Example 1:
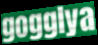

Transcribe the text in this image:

gogglya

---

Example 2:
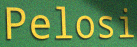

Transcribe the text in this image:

Pelosi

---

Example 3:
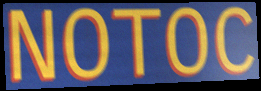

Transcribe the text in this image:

NOTOC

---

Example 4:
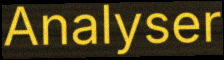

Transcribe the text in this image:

Analyser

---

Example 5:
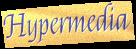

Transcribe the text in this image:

Hypermedia